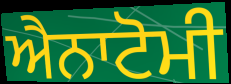
ਐਨਾਟੋਮੀ